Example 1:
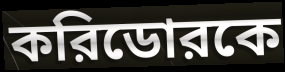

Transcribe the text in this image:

করিডোরকে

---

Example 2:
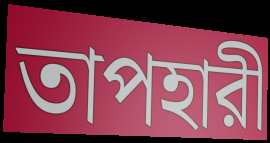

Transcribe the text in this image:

তাপহারী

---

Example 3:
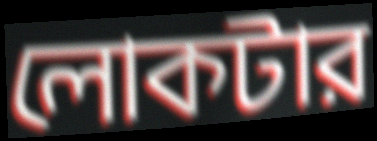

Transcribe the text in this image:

লোকটার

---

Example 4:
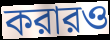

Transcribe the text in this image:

করারও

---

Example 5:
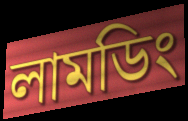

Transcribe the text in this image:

লামডিং